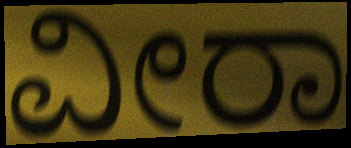
ವೀರಾ